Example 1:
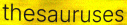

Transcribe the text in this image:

thesauruses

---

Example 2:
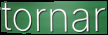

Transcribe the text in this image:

tornar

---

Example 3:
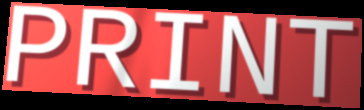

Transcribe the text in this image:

PRINT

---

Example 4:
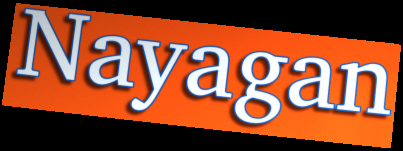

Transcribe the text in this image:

Nayagan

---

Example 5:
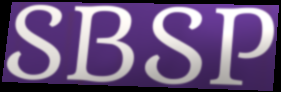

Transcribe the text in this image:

SBSP